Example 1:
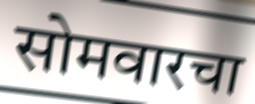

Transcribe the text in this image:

सोमवारचा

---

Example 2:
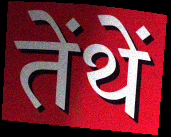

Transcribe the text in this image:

तेंथें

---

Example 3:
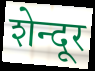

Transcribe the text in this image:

शेन्दूर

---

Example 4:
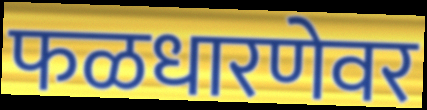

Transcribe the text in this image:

फळधारणेवर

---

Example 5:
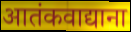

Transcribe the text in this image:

आतंकवाद्याना